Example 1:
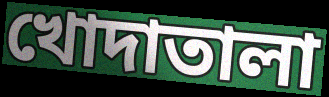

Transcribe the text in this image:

খোদাতালা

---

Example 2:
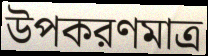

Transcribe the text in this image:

উপকরণমাত্র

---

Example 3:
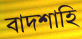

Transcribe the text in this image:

বাদশাহি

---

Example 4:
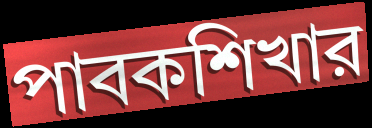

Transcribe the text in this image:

পাবকশিখার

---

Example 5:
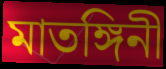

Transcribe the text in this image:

মাতঙ্গিনী